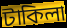
টাকিলা